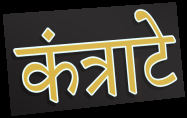
कंत्राटे